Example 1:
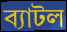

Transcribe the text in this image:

ব্যাটল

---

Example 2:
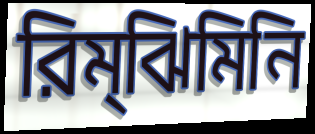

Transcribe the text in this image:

রিম্‌ঝিমিনি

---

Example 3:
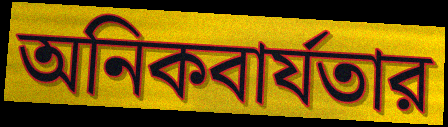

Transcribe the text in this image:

অনিকবার্যতার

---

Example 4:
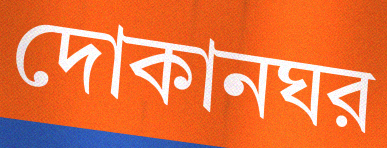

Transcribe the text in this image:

দোকানঘর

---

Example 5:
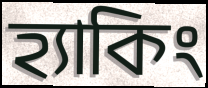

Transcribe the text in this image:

হ্যাকিং